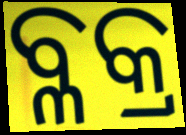
ବ୍ଳକ୍ର